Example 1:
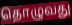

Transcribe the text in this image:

தொழுவது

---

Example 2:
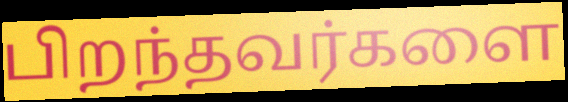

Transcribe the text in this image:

பிறந்தவர்களை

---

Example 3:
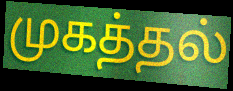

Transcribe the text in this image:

முகத்தல்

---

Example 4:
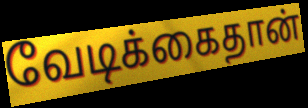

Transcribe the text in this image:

வேடிக்கைதான்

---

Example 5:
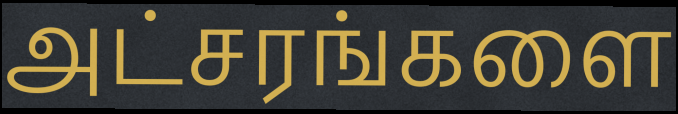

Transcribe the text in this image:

அட்சரங்களை